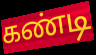
கண்டி